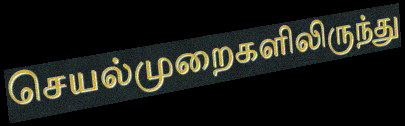
செயல்முறைகளிலிருந்து